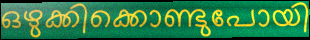
ഒഴുക്കിക്കൊണ്ടുപോയി